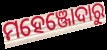
ମହେଞ୍ଜୋଦାରୁ